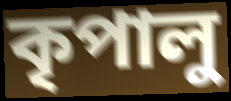
কৃপালু